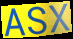
ASX